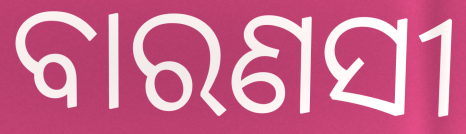
ବାରଣସୀ